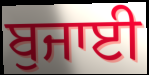
ਬੁਜਾਈ